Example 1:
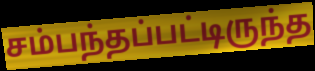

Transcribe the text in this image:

சம்பந்தப்பட்டிருந்த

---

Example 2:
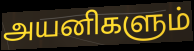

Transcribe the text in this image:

அயனிகளும்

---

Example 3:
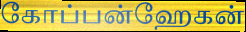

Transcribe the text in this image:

கோப்பன்ஹேகன்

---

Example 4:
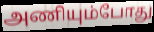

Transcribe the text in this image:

அணியும்போது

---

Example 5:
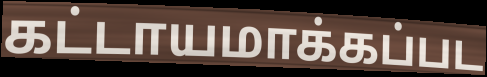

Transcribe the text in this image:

கட்டாயமாக்கப்பட